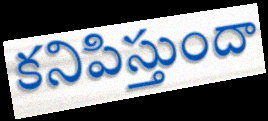
కనిపిస్తుందా